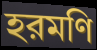
হরমণি